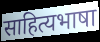
साहित्यभाषा